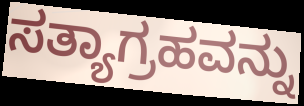
ಸತ್ಯಾಗ್ರಹವನ್ನು